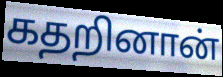
கதறினான்